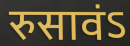
रुसावंऽ